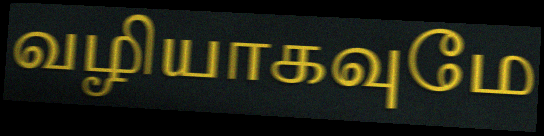
வழியாகவுமே